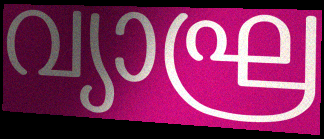
വ്യാഘ്ര